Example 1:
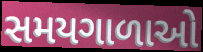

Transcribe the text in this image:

સમયગાળાઓ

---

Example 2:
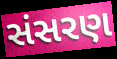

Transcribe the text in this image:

સંસરણ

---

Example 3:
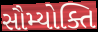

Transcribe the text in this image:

સૌમ્યોક્તિ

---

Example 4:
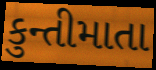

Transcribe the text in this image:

કુન્તીમાતા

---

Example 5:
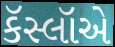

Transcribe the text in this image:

કૅસ્લૉએ